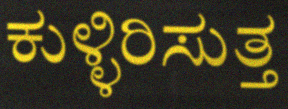
ಕುಳ್ಳಿರಿಸುತ್ತ